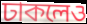
ঢাকলেও